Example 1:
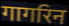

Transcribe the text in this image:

गागरिन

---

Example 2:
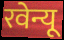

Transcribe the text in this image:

रवेन्यू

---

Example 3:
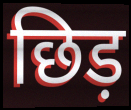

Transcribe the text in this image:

छिड़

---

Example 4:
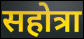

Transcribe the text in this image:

सहोत्रा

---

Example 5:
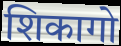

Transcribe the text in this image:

शिकागो